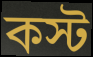
কস্ট